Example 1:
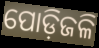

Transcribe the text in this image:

ପୋଡ଼ିଜଳି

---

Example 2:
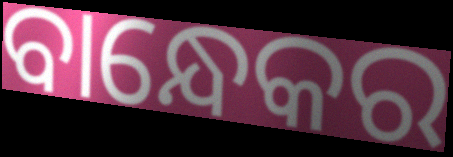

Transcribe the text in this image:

ବାନ୍ଧେକର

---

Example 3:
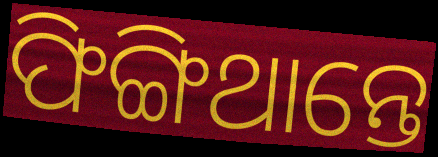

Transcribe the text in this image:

ଫିଙ୍ଗିଥାନ୍ତେ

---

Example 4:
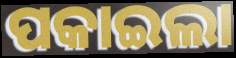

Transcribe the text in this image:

ପକାଇଲା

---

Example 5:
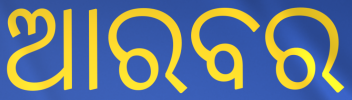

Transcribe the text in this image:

ଆରବର